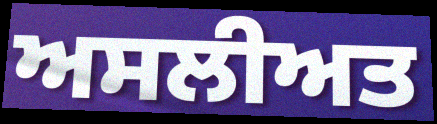
ਅਸਲੀਅਤ